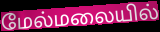
மேல்மலையில்